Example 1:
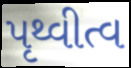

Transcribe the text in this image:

પૃથ્વીત્વ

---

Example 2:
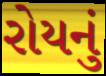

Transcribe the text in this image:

રોયનું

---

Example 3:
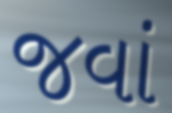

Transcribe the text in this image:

જવાં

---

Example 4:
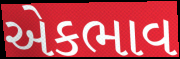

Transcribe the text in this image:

એકભાવ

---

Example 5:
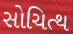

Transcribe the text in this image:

સોચિત્થ